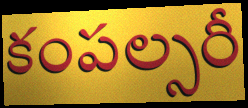
కంపల్సరీ